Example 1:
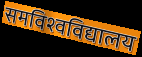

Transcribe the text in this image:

समविश्वविद्यालय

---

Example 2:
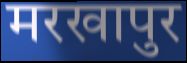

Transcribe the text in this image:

मरखापुर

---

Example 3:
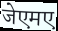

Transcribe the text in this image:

जेएमए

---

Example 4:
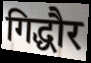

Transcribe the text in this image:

गिद्धौर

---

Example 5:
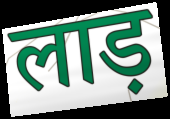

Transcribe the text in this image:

लाड़